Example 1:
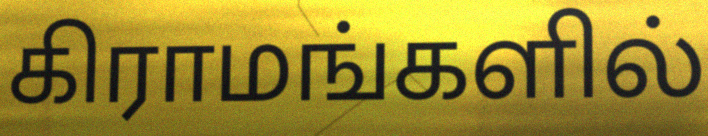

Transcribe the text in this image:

கிராமங்களில்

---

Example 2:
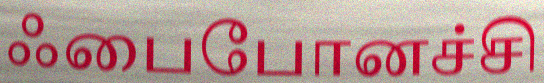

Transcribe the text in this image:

ஃபைபோனச்சி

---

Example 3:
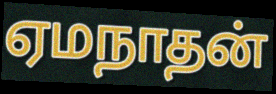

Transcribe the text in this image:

ஏமநாதன்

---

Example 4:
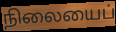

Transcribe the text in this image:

நிலையைப்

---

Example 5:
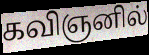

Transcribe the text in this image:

கவிஞனில்